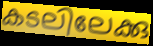
കടലിലേക്കു